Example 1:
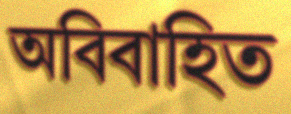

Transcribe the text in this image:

অবিবাহিত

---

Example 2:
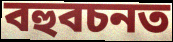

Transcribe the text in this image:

বহুবচনত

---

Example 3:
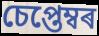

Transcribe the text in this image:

চেপ্তেম্বৰ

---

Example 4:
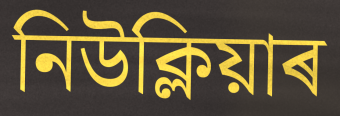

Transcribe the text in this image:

নিউক্লিয়াৰ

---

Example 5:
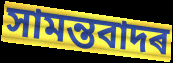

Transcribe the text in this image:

সামন্তবাদৰ